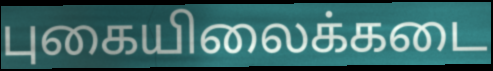
புகையிலைக்கடை